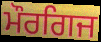
ਮੌਰਗਿਜ